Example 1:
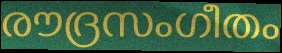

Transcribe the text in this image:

രൗദ്രസംഗീതം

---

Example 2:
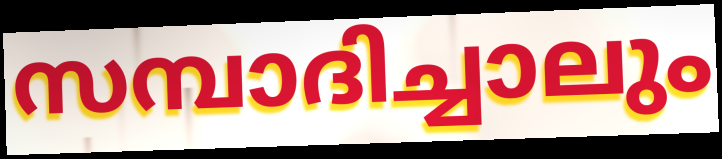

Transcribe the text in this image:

സമ്പാദിച്ചാലും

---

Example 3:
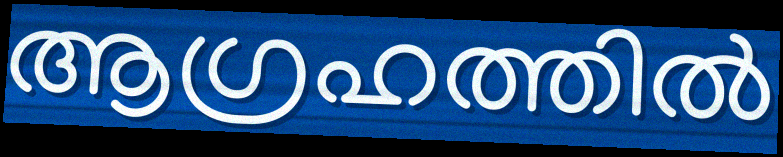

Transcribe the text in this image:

ആഗ്രഹത്തിൽ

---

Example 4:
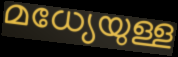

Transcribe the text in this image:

മധ്യേയുള്ള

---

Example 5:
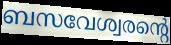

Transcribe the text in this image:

ബസവേശ്വരന്റെ